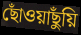
ছোঁওয়াছুঁয়ি